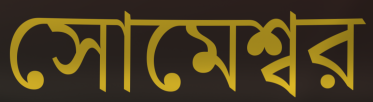
সোমেশ্বর